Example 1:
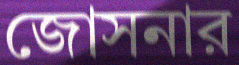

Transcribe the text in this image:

জোসনার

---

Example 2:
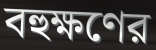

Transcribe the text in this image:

বহুক্ষণের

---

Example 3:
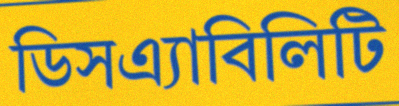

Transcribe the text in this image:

ডিসএ্যাবিলিটি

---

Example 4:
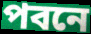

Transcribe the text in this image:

পবনে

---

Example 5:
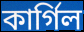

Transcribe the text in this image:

কার্গিল